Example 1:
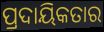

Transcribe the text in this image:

ପ୍ରଦାୟିକତାର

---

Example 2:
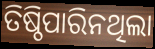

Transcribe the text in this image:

ତିଷ୍ଠିପାରିନଥିଲା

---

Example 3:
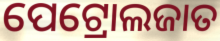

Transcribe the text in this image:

ପେଟ୍ରୋଲଜାତ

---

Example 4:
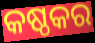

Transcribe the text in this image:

କଷ୍ଠକର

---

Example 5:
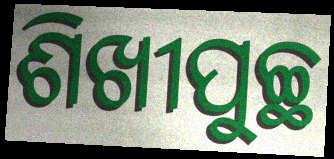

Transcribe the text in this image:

ଶିଖୀପୁଚ୍ଛ